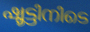
ഷൂട്ടിനിടെ